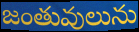
జంతువులును